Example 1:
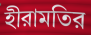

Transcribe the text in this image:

হীরামতির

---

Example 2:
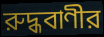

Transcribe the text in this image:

রুদ্ধবাণীর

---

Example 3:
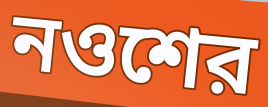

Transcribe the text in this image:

নওশের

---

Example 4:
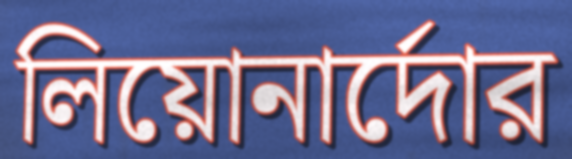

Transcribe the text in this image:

লিয়োনার্দোর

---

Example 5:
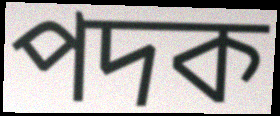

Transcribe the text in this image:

পদক